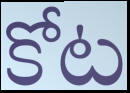
కోట